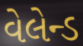
વેલેન્ડ